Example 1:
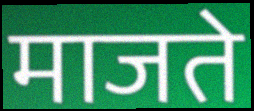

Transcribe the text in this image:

माजते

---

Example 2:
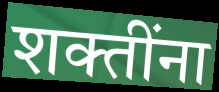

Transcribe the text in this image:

शक्तींना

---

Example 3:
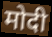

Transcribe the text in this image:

मोदी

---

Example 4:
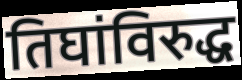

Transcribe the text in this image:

तिघांविरुद्ध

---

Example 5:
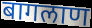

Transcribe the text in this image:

बागलाण